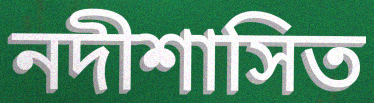
নদীশাসিত